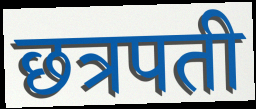
छत्रपती